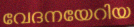
വേദനയേറിയ